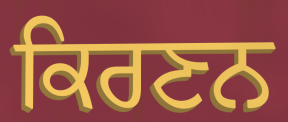
ਕਿਰਣਨ